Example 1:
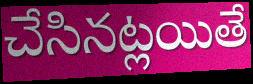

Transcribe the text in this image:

చేసినట్లయితే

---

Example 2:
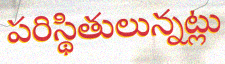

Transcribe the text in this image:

పరిస్థితులున్నట్లు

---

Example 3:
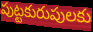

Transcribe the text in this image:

పుట్టకురుపులకు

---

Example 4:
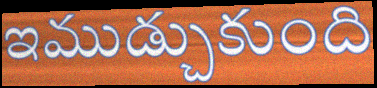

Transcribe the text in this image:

ఇముడ్చుకుంది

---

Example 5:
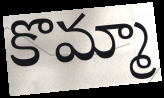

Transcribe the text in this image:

కొమ్మా